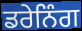
ਡਰੇਨਿੰਗ